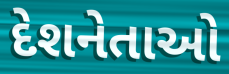
દેશનેતાઓ